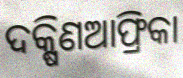
ଦକ୍ଷିଣଆଫ୍ରିକା